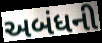
અબંધની